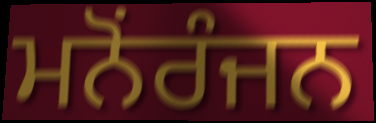
ਮਨੋਂਰੰਜਨ